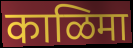
काळिमा